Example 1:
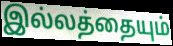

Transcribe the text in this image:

இல்லத்தையும்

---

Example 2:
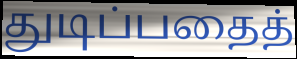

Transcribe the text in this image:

துடிப்பதைத்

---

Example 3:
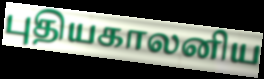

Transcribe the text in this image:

புதியகாலனிய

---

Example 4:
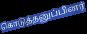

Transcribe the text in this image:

கொடுத்தனுப்பினர்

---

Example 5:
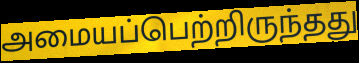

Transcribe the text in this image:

அமையப்பெற்றிருந்தது